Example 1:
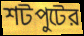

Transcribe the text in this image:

শটপুটের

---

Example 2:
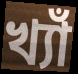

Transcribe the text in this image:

খ্যাঁ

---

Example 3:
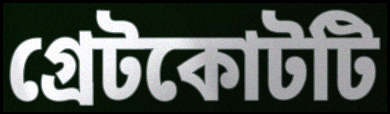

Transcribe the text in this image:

গ্রেটকোটটি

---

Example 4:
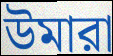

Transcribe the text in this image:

উমারা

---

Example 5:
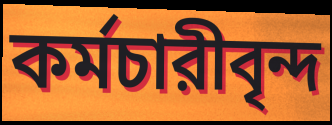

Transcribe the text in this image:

কর্মচারীবৃন্দ